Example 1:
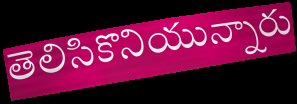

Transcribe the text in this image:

తెలిసికొనియున్నారు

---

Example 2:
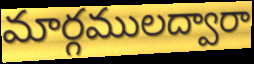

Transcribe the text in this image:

మార్గములద్వారా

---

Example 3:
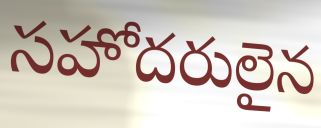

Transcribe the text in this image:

సహోదరులైన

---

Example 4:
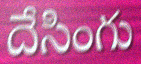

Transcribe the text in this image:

దేసింగు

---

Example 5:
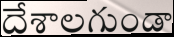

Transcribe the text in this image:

దేశాలగుండా